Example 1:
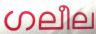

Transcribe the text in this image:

ഗലീല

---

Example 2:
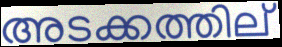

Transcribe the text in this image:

അടക്കത്തില്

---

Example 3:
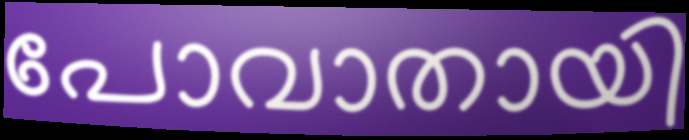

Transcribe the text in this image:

പോവാതായി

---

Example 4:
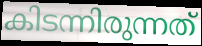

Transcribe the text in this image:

കിടന്നിരുന്നത്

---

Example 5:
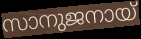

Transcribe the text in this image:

സാനുജനായ്